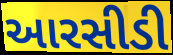
આરસીડી